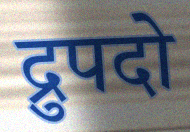
द्रुपदो